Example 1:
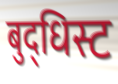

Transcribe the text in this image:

बुद्धिस्ट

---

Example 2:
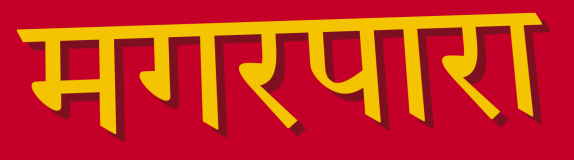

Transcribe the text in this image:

मगरपारा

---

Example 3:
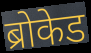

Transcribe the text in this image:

ब्रोकेड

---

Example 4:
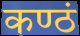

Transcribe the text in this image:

कण्ठं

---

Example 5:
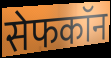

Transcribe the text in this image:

सेफकॉन